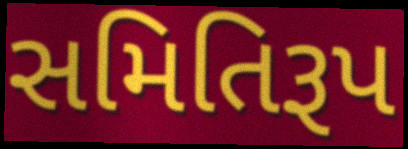
સમિતિરૂપ